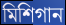
মিশিগান